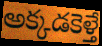
అక్కడకెళ్తే